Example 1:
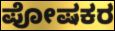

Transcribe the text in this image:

ಪೋಷಕರ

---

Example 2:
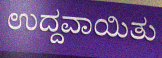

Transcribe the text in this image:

ಉದ್ದವಾಯಿತು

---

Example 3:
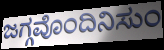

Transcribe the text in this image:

ಜಗ್ಗವೊಂದಿನಿಸುಂ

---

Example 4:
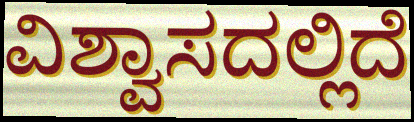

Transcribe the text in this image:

ವಿಶ್ವಾಸದಲ್ಲಿದೆ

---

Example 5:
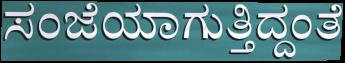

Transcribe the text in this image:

ಸಂಜೆಯಾಗುತ್ತಿದ್ದಂತೆ